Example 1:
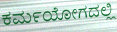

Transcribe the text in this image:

ಕರ್ಮಯೋಗದಲ್ಲಿ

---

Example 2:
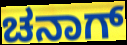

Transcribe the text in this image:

ಚನಾಗ್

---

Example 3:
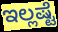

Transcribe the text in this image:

ಇಲ್ಲಷ್ಟೆ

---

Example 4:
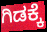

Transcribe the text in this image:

ಗಿಡಕ್ಕೆ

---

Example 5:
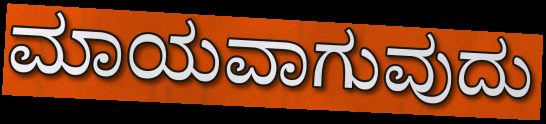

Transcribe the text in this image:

ಮಾಯವಾಗುವುದು